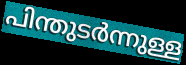
പിന്തുടർന്നുള്ള